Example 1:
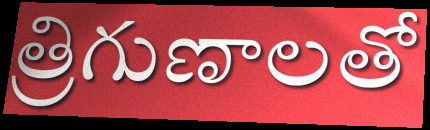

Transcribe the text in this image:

త్రిగుణాలతో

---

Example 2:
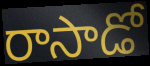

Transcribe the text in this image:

రాసాడో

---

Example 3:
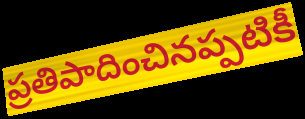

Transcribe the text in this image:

ప్రతిపాదించినప్పటికీ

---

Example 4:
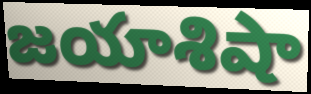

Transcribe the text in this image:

జయాశిషా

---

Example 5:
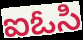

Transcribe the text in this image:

ఐఓసి